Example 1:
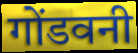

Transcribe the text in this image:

गोंडवनी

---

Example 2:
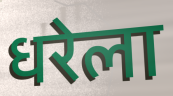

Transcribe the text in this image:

धरेला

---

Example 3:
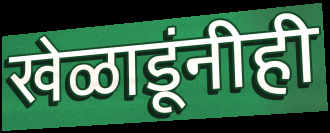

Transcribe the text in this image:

खेळाडूंनीही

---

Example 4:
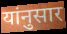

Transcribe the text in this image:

यांनुसार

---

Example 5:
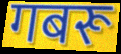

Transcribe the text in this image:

गबरू